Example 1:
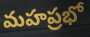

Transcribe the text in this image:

మహప్రభో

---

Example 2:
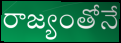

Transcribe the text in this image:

రాజ్యంతోనే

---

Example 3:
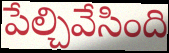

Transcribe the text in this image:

పేల్చివేసింది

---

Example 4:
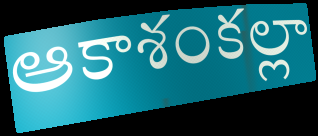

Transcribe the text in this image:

ఆకాశంకల్లా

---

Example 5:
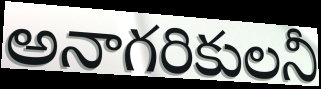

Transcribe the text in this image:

అనాగరికులనీ